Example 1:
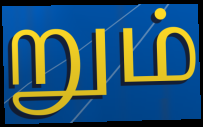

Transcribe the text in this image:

றும்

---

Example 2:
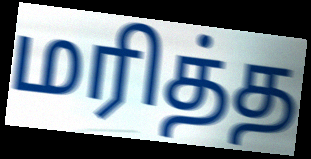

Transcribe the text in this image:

மரித்த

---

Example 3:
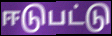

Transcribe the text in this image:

ஈடுபட்டு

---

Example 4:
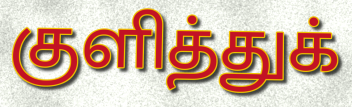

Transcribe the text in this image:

குளித்துக்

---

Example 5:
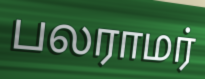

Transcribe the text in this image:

பலராமர்